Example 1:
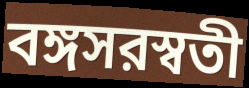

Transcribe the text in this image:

বঙ্গসরস্বতী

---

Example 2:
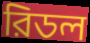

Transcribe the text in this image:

রিডল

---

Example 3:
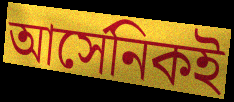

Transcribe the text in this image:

আর্সেনিকই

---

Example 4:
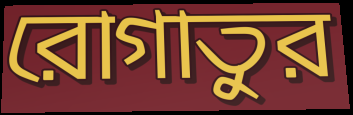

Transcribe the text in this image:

রোগাতুর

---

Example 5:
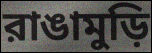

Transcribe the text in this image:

রাঙামুড়ি